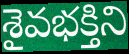
శైవభక్తిని